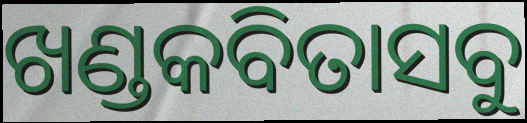
ଖଣ୍ଡକବିତାସବୁ